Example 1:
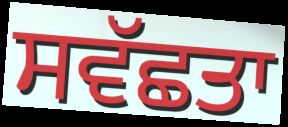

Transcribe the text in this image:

ਸਵੱਛਤਾ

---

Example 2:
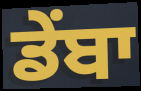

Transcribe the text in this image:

ਡੇਂਬਾ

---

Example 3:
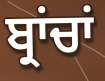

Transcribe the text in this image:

ਬ੍ਰਾਂਚਾਂ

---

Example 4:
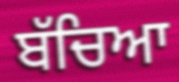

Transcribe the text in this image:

ਬੱਚਿਆ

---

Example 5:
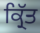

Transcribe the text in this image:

ਕ੍ਰਿੱਤ